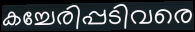
കച്ചേരിപ്പടിവരെ